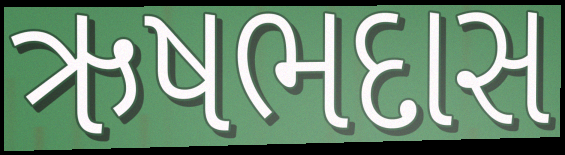
ઋષભદાસ